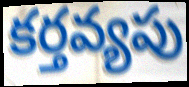
కర్తవ్యపు